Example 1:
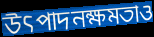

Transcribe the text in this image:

উৎপাদনক্ষমতাও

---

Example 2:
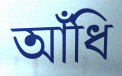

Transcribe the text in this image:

আঁধি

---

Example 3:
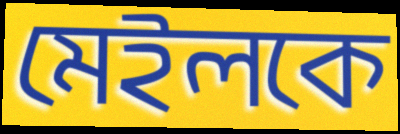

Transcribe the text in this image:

মেইলকে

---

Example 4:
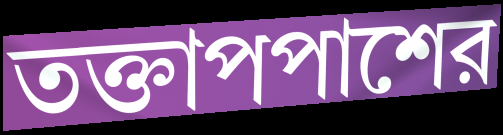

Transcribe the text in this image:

তক্তাপপাশের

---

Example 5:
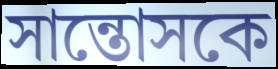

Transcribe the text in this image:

সান্তোসকে